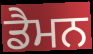
ਡੈਮਨ